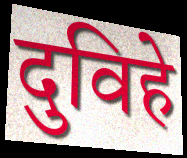
दुविहे